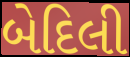
બેદિલી